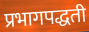
प्रभागपद्धती